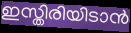
ഇസ്തിരിയിടാൻ